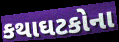
કથાઘટકોના